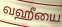
வஹீயை